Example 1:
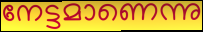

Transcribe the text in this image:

നേട്ടമാണെന്നു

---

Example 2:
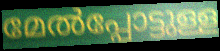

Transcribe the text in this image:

മേൽപ്പോട്ടുള്ള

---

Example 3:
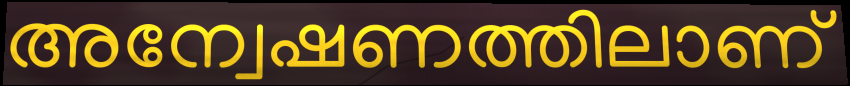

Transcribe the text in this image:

അന്വേഷണത്തിലാണ്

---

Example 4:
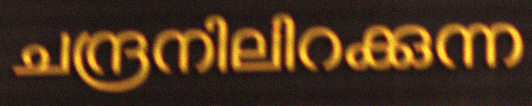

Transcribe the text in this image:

ചന്ദ്രനിലിറക്കുന്ന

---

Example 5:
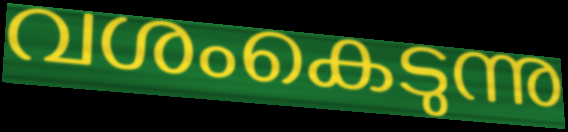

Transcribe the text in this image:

വശംകെടുന്നു